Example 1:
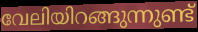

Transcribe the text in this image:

വേലിയിറങ്ങുന്നുണ്ട്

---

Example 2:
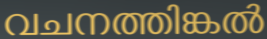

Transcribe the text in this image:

വചനത്തിങ്കൽ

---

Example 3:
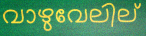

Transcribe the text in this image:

വാഴുവേലില്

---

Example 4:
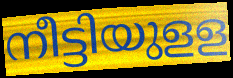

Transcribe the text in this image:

നീട്ടിയുളള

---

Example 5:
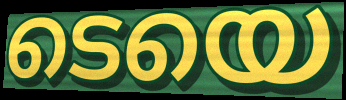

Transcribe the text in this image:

ടെയെ